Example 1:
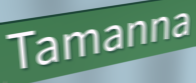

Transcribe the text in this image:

Tamanna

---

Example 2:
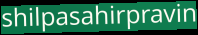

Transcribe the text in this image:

shilpasahirpravin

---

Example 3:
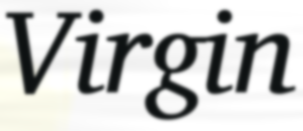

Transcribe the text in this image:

Virgin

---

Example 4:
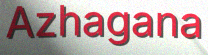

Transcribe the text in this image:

Azhagana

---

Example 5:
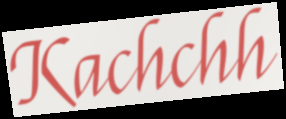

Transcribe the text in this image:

Kachchh